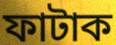
ফাটাক